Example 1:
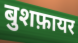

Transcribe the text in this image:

बुशफ़ायर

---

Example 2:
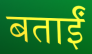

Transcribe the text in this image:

बताईं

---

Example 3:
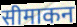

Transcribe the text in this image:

सीमाकन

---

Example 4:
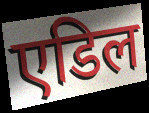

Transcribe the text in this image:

एडिल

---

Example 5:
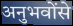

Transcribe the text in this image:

अनुभवोंसे